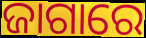
ଜାଗାରେ